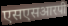
एसएसआरपी